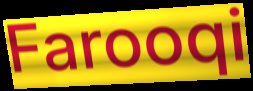
Farooqi